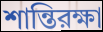
শান্তিরক্ষা